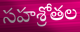
సహశ్రోతల